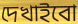
দেখাইবো